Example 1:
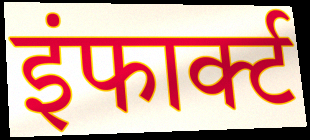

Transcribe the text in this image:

इंफार्क्ट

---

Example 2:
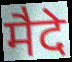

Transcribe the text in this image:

मैदे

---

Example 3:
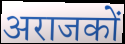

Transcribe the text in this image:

अराजकों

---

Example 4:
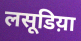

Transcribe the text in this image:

लसूडिय़ा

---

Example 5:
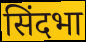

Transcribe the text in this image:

सिंदभा